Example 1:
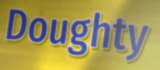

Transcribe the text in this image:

Doughty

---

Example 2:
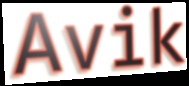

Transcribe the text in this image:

Avik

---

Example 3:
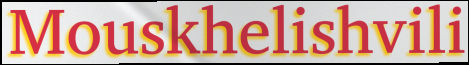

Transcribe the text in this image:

Mouskhelishvili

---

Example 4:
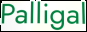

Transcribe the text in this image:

Palligal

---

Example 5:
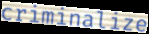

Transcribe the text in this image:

criminalize